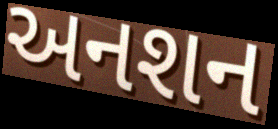
અનશન